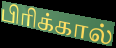
பிரிக்கால்